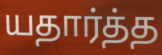
யதார்த்த